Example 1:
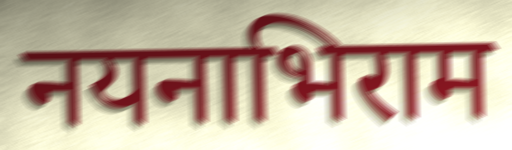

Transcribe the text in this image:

नयनाभिराम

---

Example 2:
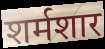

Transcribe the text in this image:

शर्मशार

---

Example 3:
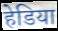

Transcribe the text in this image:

हेडिया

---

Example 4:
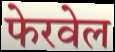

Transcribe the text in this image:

फेरवेल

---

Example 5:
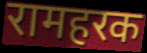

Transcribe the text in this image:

रामहरक